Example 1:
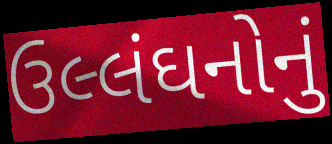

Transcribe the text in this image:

ઉલ્લંઘનોનું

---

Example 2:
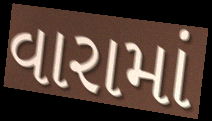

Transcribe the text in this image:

વારામાં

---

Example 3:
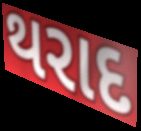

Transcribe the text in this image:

થરાદ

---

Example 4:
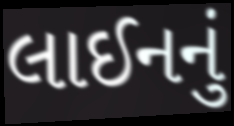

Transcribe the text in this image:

લાઈનનું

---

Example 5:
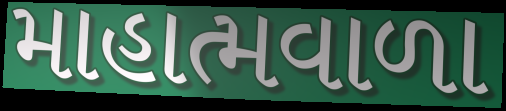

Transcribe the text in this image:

માહાત્મવાળા